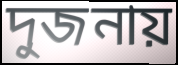
দুজনায়